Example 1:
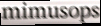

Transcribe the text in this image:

mimusops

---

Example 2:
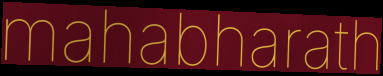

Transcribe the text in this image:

mahabharath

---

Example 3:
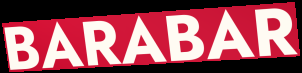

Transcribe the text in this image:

BARABAR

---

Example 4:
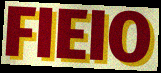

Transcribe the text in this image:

FIEIO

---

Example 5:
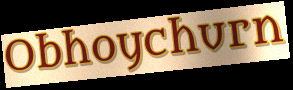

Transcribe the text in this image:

Obhoychurn